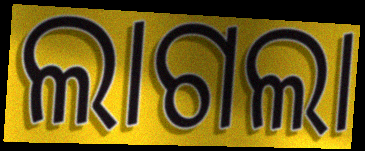
ଲାଗଲା